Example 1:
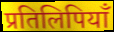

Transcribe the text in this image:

प्रतिलिपियाँ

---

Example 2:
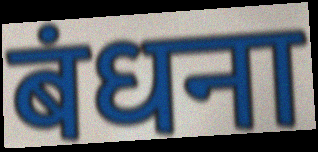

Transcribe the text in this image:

बंधना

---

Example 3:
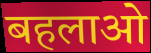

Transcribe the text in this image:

बहलाओ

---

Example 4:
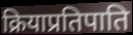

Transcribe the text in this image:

क्रियाप्रतिपाति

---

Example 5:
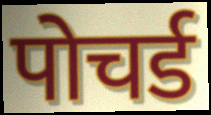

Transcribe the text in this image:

पोचर्ड